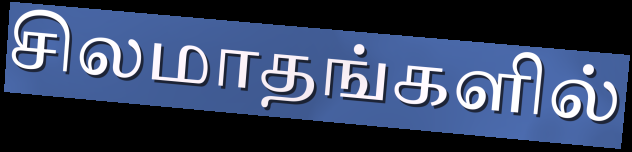
சிலமாதங்களில்